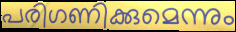
പരിഗണിക്കുമെന്നും